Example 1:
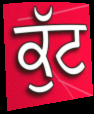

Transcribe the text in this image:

ਕੁੱਟ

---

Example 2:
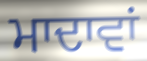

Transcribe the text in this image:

ਮਾਦਾਵਾਂ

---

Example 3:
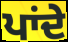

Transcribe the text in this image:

ਪਾਂਦੇ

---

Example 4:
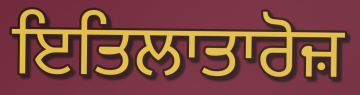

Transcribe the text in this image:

ਇਤਿਲਾਤਾਰੋਜ਼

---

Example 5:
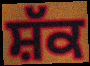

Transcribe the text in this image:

ਸ਼ੱਕ